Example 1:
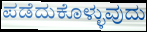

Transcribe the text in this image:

ಪಡೆದುಕೊಳ್ಳುವುದು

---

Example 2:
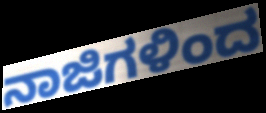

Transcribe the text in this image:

ನಾಜಿಗಳಿಂದ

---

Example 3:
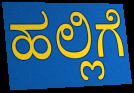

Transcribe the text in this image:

ಹಲ್ಲಿಗೆ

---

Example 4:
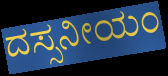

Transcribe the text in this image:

ದಸ್ಸನೀಯಂ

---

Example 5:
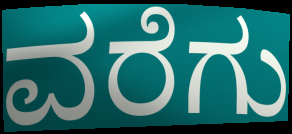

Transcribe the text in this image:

ವರೆಗು